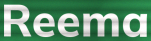
Reema